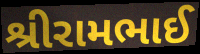
શ્રીરામભાઈ